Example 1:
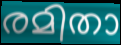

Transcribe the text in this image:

രമിതാ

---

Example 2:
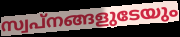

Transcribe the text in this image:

സ്വപ്നങ്ങളുടേയും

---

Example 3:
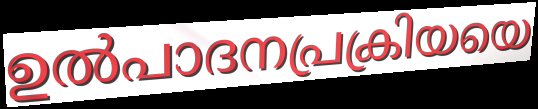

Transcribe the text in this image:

ഉൽപാദനപ്രക്രിയയെ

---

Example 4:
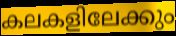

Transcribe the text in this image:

കലകളിലേക്കും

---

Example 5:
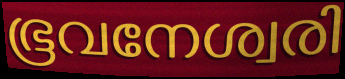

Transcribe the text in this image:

ഭൂവനേശ്വരി